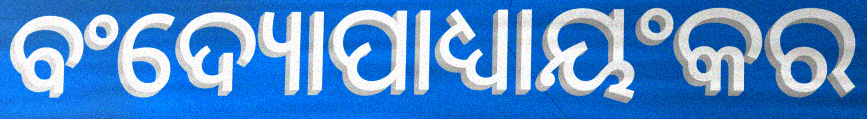
ବଂଦ୍ୟୋପାଧ୍ୟାୟଂକର